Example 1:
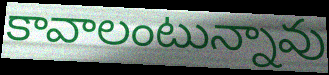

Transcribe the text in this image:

కావాలంటున్నావు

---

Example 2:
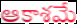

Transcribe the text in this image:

ఆకాశమే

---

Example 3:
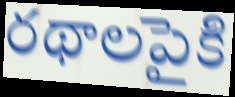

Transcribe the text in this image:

రథాలపైకి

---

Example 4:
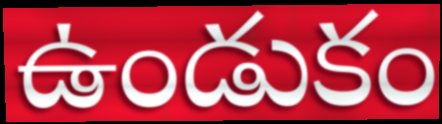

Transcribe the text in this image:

ఉండుకం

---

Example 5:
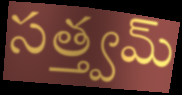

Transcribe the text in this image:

సత్త్వమ్